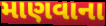
માણવાના